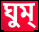
ঘুম্